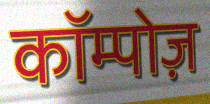
कॉम्पोज़